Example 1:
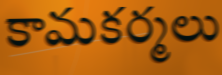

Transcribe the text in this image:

కామకర్మలు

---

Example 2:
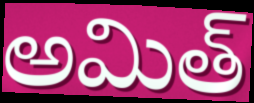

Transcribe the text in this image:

అమిత్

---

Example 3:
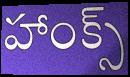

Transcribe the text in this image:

హాంక్స్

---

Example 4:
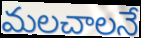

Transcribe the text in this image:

మలచాలనే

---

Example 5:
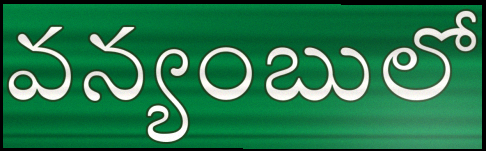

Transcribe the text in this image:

వన్యంబులో